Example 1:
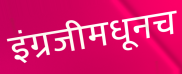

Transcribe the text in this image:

इंग्रजीमधूनच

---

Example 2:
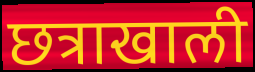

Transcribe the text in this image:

छत्राखाली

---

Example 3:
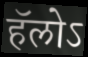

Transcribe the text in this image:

हॅलोऽ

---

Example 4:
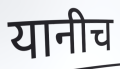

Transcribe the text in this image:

यानीच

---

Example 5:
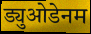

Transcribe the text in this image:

ड्युओडेनम